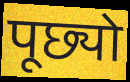
पूछ्यो